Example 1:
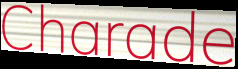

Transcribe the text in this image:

Charade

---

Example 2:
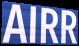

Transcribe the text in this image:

AIRR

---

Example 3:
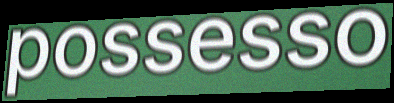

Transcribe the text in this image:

possesso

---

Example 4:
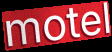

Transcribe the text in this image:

motel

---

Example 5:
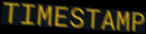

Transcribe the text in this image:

TIMESTAMP